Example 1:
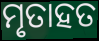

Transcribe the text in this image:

ମୃତାହତ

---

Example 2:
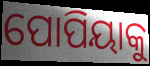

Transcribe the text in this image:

ପୋପିୟାକୁ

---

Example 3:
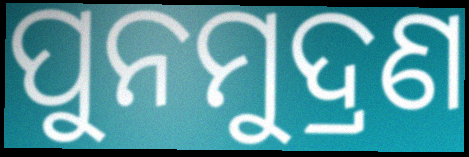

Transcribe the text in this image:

ପୁନମୁଦ୍ରଣ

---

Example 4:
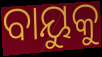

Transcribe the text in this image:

ବାୟୁକୁ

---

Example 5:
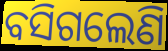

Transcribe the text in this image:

ବସିଗଲେଣି